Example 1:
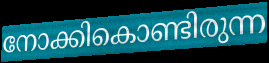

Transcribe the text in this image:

നോക്കികൊണ്ടിരുന്ന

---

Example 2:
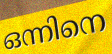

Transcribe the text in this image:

ഒന്നിനെ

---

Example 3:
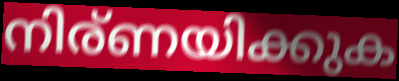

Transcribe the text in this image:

നിര്ണയിക്കുക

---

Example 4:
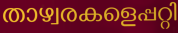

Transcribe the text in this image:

താഴ്വരകളെപ്പറ്റി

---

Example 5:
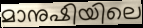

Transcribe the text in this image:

മാനുഷിയിലെ